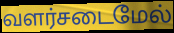
வளர்சடைமேல்